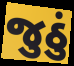
જુઠું